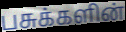
பசுக்களின்